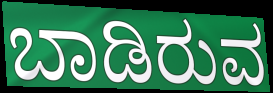
ಬಾಡಿರುವ